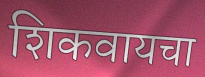
शिकवायचा